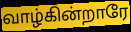
வாழ்கின்றாரே